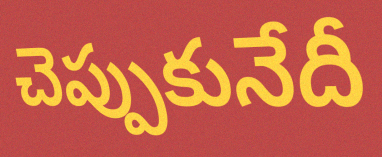
చెప్పుకునేదీ